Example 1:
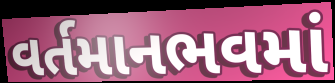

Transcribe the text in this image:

વર્તમાનભવમાં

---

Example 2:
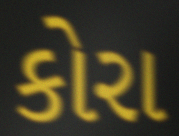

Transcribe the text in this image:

કોરા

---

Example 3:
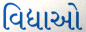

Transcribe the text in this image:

વિદ્યાઓ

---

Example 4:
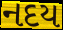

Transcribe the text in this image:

નદય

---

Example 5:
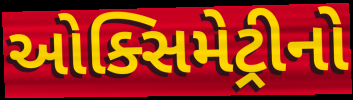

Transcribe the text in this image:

ઓક્સિમેટ્રીનો